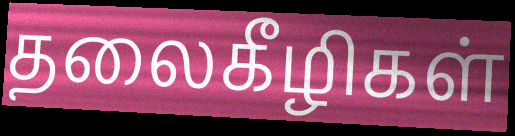
தலைகீழிகள்